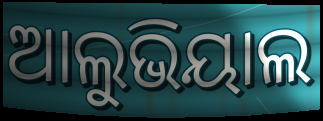
ଆଲୁଭିୟାଲ